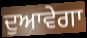
ਦੁਆਵੇਗਾ